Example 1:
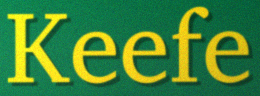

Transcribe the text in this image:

Keefe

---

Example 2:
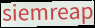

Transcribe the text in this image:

siemreap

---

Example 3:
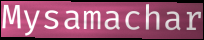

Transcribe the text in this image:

Mysamachar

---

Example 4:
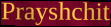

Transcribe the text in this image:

Prayshchit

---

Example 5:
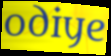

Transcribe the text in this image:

odiye